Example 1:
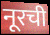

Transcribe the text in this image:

नूरची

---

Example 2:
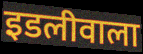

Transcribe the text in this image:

इडलीवाला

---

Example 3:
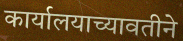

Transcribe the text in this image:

कार्यालयाच्यावतीने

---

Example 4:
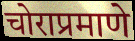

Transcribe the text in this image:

चोराप्रमाणे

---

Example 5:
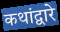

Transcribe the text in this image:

कथांद्वारे